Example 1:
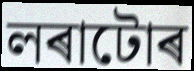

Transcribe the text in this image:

লৰাটোৰ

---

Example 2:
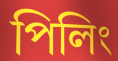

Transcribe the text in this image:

পিলিং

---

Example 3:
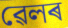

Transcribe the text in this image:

ৱেলৰ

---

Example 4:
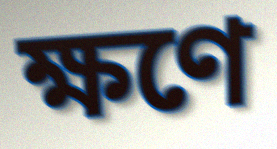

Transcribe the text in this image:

ক্ষণে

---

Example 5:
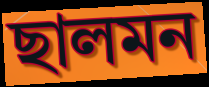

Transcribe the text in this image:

ছালমন